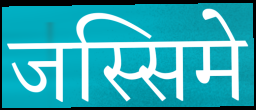
जस्सिमे